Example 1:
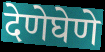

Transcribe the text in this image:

देणेघेणे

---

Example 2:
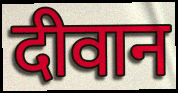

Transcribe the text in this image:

दीवान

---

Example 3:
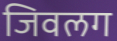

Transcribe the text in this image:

जिवलग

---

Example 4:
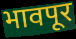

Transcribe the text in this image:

भावपूर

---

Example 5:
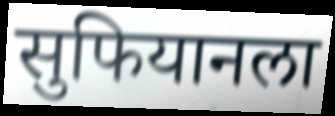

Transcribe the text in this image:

सुफियानला